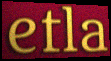
etla